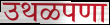
उथळपणा